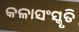
କଳାସଂସ୍କୃତି